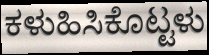
ಕಳುಹಿಸಿಕೊಟ್ಟಳು